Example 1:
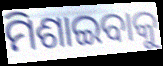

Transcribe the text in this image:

ମିଶାଇବାକୁ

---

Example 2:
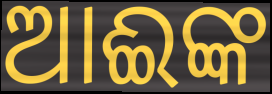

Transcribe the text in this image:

ଆଈଙ୍କ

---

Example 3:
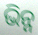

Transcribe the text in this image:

ଭିନ୍ନ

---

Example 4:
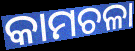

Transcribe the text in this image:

କାମଚଳା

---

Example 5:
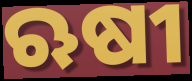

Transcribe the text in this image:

ଋଷୀ